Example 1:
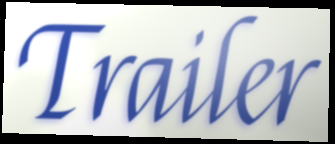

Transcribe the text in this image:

Trailer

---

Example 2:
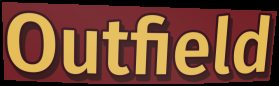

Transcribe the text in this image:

Outfield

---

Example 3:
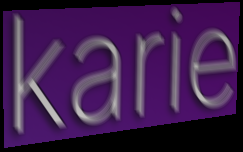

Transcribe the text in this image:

karie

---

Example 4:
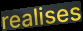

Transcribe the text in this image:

realises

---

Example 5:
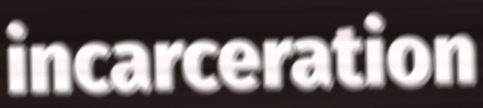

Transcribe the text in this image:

incarceration